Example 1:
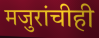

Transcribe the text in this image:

मजुरांचीही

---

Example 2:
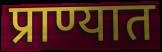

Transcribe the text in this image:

प्राण्यात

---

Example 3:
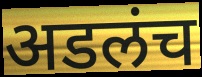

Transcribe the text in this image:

अडलंच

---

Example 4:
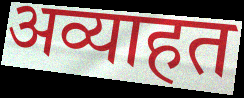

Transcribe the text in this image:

अव्याहत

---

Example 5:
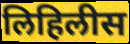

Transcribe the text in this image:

लिहिलीस